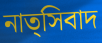
নাত্সিবাদ